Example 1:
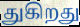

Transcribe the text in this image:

துகிறது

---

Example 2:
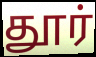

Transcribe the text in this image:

தூர்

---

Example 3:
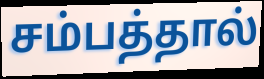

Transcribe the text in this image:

சம்பத்தால்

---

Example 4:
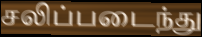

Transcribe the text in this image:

சலிப்படைந்து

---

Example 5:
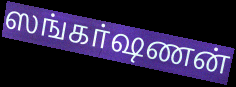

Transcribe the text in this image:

ஸங்கர்ஷணன்